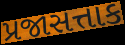
પ્રજાસત્તાક